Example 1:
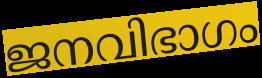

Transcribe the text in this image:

ജനവിഭാഗം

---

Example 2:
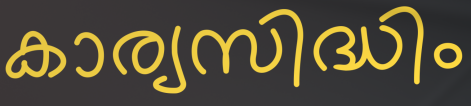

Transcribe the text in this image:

കാര്യസിദ്ധിം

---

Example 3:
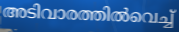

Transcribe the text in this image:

അടിവാരത്തിൽവെച്ച്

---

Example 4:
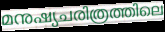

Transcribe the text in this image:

മനുഷ്യചരിത്രത്തിലെ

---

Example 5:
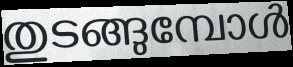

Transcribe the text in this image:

തുടങ്ങുമ്പോൾ